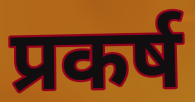
प्रकर्ष